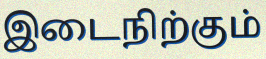
இடைநிற்கும்